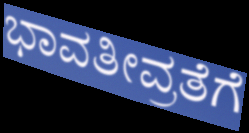
ಭಾವತೀವ್ರತೆಗೆ